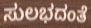
ಸುಲಭದಂತೆ